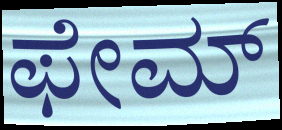
ಫೇಮ್